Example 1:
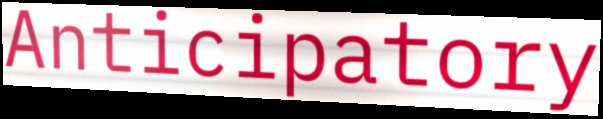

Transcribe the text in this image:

Anticipatory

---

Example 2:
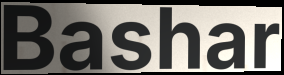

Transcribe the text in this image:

Bashar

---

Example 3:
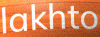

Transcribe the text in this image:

lakhto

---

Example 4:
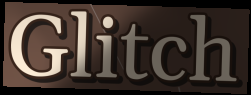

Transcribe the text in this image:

Glitch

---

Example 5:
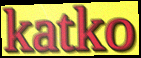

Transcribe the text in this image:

katko